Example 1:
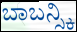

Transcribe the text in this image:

ಬಾಬನ್ಸ್ಕಿ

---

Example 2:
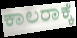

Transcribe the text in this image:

ಕಾಲರಾಕ್ಕೆ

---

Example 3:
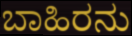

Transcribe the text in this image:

ಬಾಹಿರನು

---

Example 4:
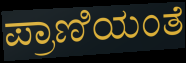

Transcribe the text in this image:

ಪ್ರಾಣಿಯಂತೆ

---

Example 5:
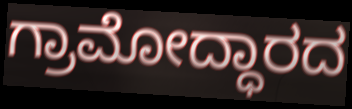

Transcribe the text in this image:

ಗ್ರಾಮೋದ್ಧಾರದ